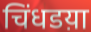
चिंधडय़ा